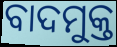
ବାଦମୁକ୍ତ